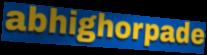
abhighorpade